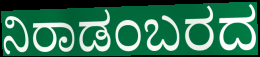
ನಿರಾಡಂಬರದ